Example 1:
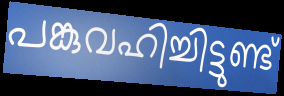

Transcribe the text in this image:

പങ്കുവഹിച്ചിട്ടുണ്ട്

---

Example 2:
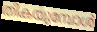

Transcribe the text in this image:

തികയുമ്പോൾ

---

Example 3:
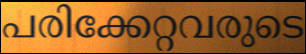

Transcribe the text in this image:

പരിക്കേറ്റവരുടെ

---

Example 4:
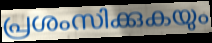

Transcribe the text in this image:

പ്രശംസിക്കുകയും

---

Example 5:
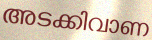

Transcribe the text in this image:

അടക്കിവാണ